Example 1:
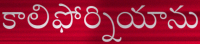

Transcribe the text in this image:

కాలిఫోర్నియాను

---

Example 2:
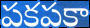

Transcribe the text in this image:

పకపకా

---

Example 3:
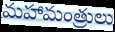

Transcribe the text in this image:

మహామంత్రులు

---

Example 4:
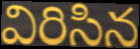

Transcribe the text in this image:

విరిసిన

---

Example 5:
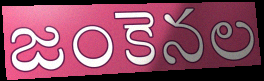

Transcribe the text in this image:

జంకెనల